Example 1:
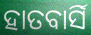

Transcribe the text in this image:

ହାତବାର୍ସି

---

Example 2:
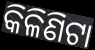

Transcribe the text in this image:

କିଳିଣିଟା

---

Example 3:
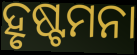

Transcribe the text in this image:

ହୃଷ୍ଟମନା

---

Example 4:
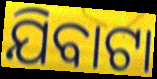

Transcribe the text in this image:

ଯିବାଟା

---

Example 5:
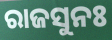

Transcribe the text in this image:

ରାଜସୁନଃ